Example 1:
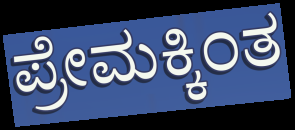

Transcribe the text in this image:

ಪ್ರೇಮಕ್ಕಿಂತ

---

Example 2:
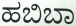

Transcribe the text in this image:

ಹಬಿಬಾ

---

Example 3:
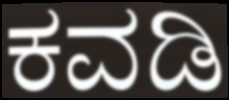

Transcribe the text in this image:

ಕವಡಿ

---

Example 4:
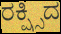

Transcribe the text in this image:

ರಕ್ಷ್ಸಿದ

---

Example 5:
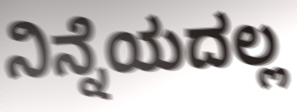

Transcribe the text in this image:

ನಿನ್ನೆಯದಲ್ಲ